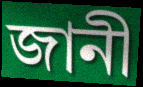
জানী